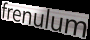
frenulum